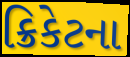
ક્રિકેટના